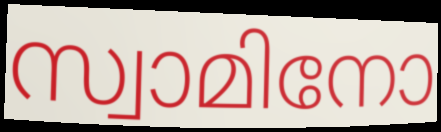
സ്വാമിനോ